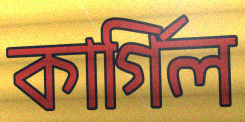
কার্গিল